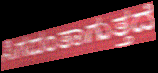
ಸಿಗದಂತಾಗುತ್ತದೆ